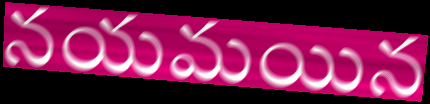
నయమయిన